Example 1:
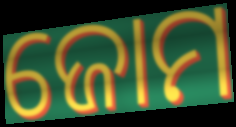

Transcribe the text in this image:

ଜୋମ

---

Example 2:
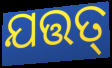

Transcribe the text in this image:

ଯତ୍ତତ୍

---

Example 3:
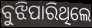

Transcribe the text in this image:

ବୁଝିପାରିଥିଲେ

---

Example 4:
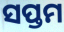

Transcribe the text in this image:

ସପ୍ତମ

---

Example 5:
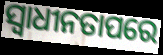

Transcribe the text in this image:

ସ୍ୱାଧୀନତାପରେ